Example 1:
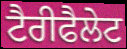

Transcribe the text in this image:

ਟੈਰੀਫੈਲੇਟ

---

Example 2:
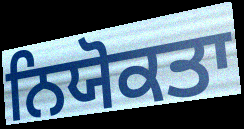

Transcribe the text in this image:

ਨਿਯੋਕਤਾ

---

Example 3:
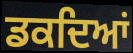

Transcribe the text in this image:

ਡਕਦਿਆਂ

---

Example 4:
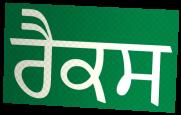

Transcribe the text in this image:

ਰੈਕਸ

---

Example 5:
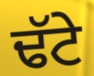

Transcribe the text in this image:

ਢੱਟੇ